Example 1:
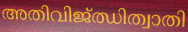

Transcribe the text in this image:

അതിവിജ്ഝിത്വാതി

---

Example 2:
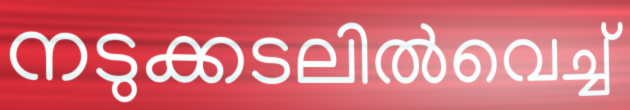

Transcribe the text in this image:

നടുക്കടലിൽവെച്ച്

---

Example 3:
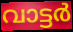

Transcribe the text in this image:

വാട്ടർ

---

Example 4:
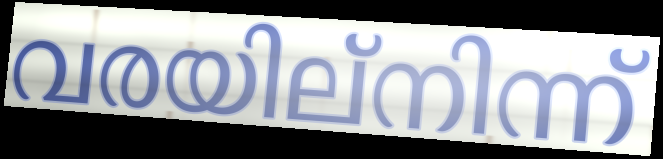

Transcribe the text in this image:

വരയില്നിന്ന്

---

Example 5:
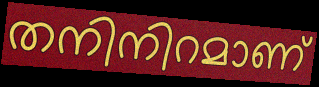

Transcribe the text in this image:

തനിനിറമാണ്